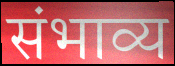
संभाव्य